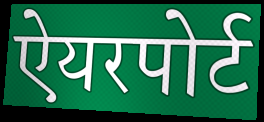
ऐयरपोर्ट